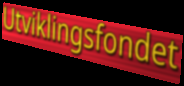
Utviklingsfondet